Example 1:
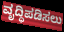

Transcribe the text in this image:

ವೃದ್ಧಿಪಡಿಸಲು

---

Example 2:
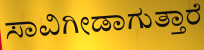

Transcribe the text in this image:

ಸಾವಿಗೀಡಾಗುತ್ತಾರೆ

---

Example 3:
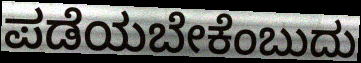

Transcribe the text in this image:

ಪಡೆಯಬೇಕೆಂಬುದು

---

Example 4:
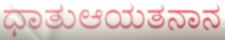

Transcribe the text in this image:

ಧಾತುಆಯತನಾನ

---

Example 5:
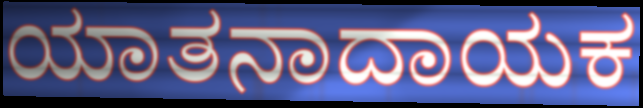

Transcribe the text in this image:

ಯಾತನಾದಾಯಕ